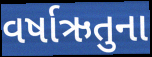
વર્ષાઋતુના